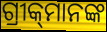
ଗ୍ରୀକ୍‌ମାନଙ୍କ